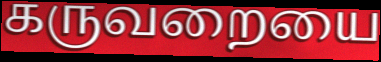
கருவறையை